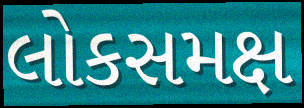
લોકસમક્ષ